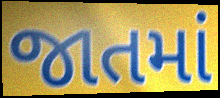
જાતમાં